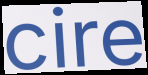
cire